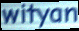
wityan